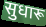
सुधारू